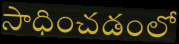
సాధించడంలో